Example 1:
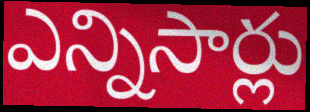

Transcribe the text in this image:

ఎన్నిసార్లు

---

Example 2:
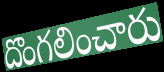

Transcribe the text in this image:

దొంగలించారు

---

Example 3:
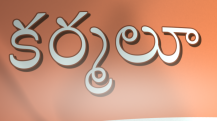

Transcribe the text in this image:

కర్మలూ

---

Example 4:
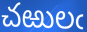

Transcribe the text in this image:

చఱులఁ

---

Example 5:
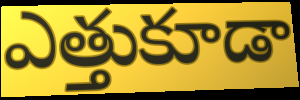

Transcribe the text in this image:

ఎత్తుకూడా